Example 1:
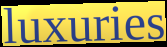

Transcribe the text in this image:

luxuries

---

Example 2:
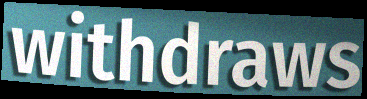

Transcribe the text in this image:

withdraws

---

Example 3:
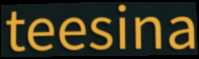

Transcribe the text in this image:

teesina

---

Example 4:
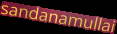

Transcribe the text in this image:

sandanamullai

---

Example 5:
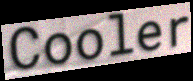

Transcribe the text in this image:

Cooler